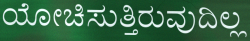
ಯೋಚಿಸುತ್ತಿರುವುದಿಲ್ಲ